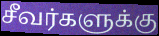
சீவர்களுக்கு